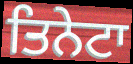
ਤਿਨੇਟਾ